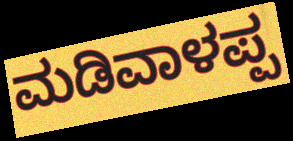
ಮಡಿವಾಳಪ್ಪ